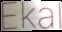
Ekal